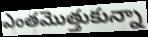
ఎంతమొత్తుకున్నా